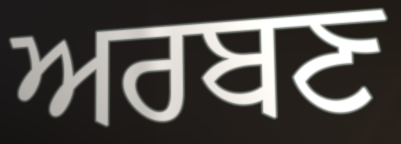
ਅਰਬਣ